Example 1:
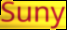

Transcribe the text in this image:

Suny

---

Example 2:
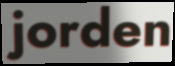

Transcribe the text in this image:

jorden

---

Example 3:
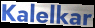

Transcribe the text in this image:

Kalelkar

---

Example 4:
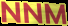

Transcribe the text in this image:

NNM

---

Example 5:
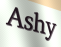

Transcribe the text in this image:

Ashy